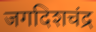
जगदिशचंद्र